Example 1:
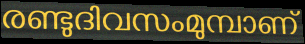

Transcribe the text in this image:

രണ്ടുദിവസംമുമ്പാണ്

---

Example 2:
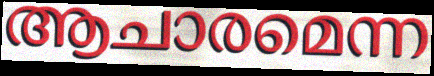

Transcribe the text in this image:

ആചാരമെന്ന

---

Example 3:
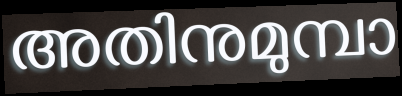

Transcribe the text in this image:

അതിനുമുമ്പാ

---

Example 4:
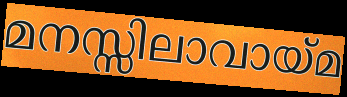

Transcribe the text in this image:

മനസ്സിലാവായ്മ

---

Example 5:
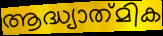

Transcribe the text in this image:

ആദ്ധ്യാത്‌മിക